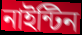
নাইন্টিন